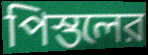
পিস্তলের